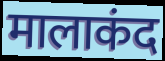
मालाकंद